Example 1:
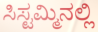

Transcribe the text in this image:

ಸಿಸ್ಟಮ್ಮಿನಲ್ಲಿ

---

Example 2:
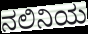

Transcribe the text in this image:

ನಲಿನಿಯ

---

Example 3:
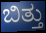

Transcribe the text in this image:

ಬಿತ್ತು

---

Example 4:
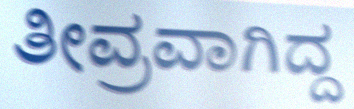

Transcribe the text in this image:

ತೀವ್ರವಾಗಿದ್ದ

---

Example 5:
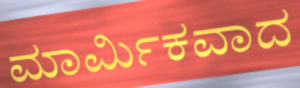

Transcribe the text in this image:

ಮಾರ್ಮಿಕವಾದ